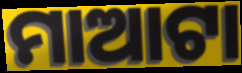
ମାଆଟା